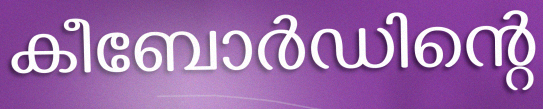
കീബോർഡിന്റെ